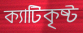
ক্যাটিকৃষ্ট